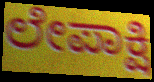
ಲೇಪಾಕ್ಷಿ